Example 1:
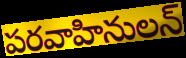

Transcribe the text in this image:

పరవాహినులన్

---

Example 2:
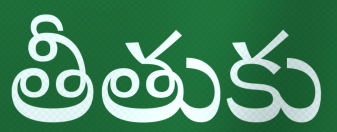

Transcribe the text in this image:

తీతుకు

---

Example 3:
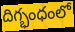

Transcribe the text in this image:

దిగ్భంధంలో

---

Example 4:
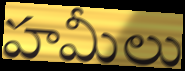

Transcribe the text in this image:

హమీలు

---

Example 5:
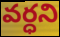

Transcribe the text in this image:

వర్ధని